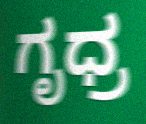
ಗೃಧ್ರ